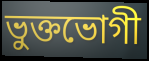
ভুক্তভোগী